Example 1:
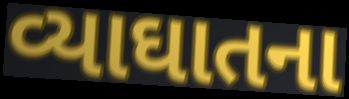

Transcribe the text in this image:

વ્યાઘાતના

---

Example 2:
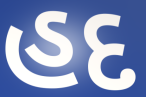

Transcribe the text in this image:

હદ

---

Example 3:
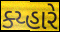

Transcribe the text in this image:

ક્ય્હારે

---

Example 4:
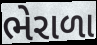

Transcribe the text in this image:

ભેરાળા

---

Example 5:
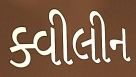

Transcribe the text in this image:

ક્વીલીન